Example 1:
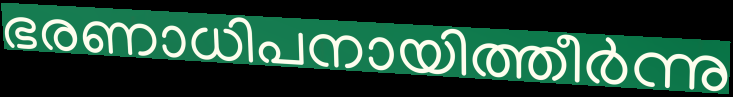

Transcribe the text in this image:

ഭരണാധിപനായിത്തീർന്നു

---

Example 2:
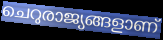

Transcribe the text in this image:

ചെറുരാജ്യങ്ങളാണ്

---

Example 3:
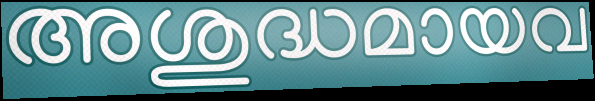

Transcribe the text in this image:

അശുദ്ധമായവ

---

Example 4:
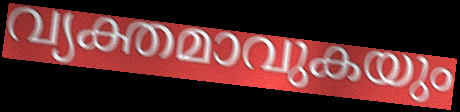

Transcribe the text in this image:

വ്യക്തമാവുകയും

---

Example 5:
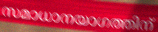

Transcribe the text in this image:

സമാധാനയാഗത്തിന്